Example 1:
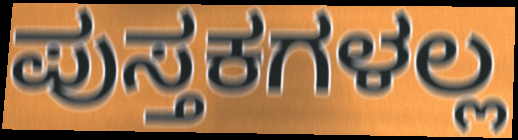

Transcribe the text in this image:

ಪುಸ್ತಕಗಳಲ್ಲ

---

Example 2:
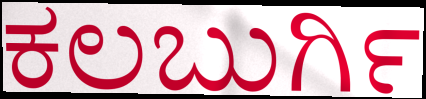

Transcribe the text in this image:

ಕಲಬುರ್ಗಿ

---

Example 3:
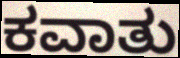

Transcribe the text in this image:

ಕವಾತು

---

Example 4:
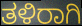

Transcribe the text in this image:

ತಳಿರಾಗಿ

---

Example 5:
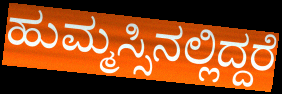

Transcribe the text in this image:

ಹುಮ್ಮಸ್ಸಿನಲ್ಲಿದ್ದರೆ